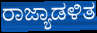
ರಾಜ್ಯಾಡಳಿತ